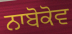
ਨਾਬੋਕੋਵ